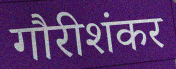
गौरीशंकर